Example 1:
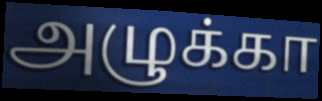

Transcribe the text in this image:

அழுக்கா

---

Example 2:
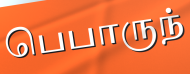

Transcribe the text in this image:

பெபாருந்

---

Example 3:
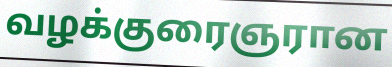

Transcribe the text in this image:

வழக்குரைஞரான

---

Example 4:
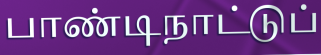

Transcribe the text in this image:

பாண்டிநாட்டுப்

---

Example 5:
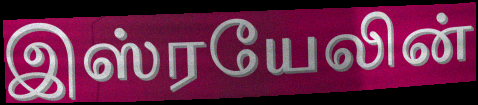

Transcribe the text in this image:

இஸ்ரயேலின்